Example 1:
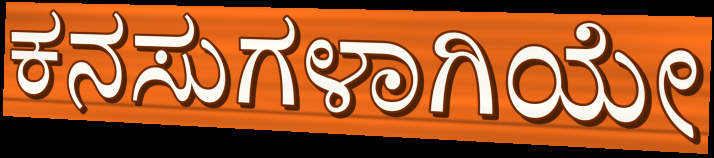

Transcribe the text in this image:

ಕನಸುಗಳಾಗಿಯೇ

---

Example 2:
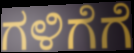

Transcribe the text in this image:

ಗಳಿಗೆಗೆ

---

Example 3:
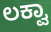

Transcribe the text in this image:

ಲಕ್ವಾ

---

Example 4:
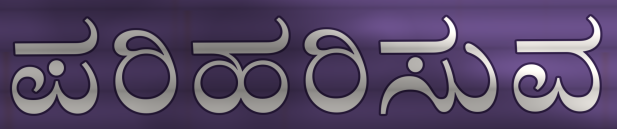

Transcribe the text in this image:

ಪರಿಹರಿಸುವ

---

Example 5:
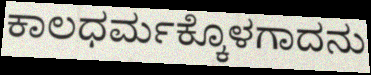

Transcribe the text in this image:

ಕಾಲಧರ್ಮಕ್ಕೊಳಗಾದನು